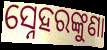
ସ୍ନେହରଙ୍କୁଣା